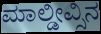
ಮಾಲ್ಡೀವ್ಸಿನ